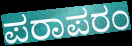
ಪರಾಪರಂ